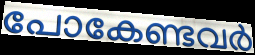
പോകേണ്ടവർ